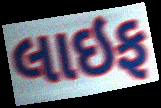
લાઇફ